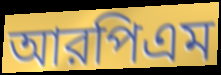
আরপিএম